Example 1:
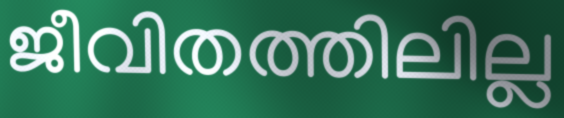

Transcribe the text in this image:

ജീവിതത്തിലില്ല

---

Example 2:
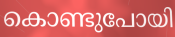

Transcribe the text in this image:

കൊണ്ടുപോയി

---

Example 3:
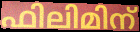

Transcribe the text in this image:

ഫിലിമിന്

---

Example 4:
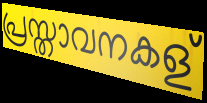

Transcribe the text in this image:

പ്രസ്താവനകള്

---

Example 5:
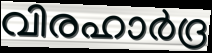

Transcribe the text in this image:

വിരഹാർദ്ര